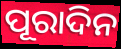
ପୂରାଦିନ